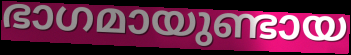
ഭാഗമായുണ്ടായ